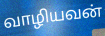
வாழியவன்